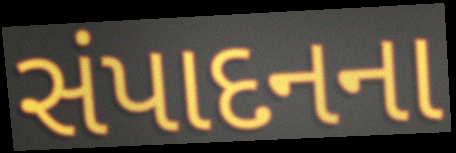
સંપાદનના